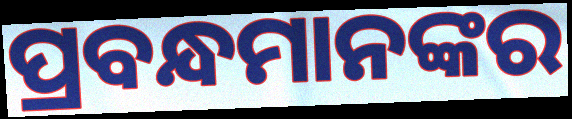
ପ୍ରବନ୍ଧମାନଙ୍କର